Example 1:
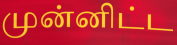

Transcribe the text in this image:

முன்னிட்ட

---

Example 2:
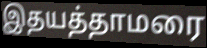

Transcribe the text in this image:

இதயத்தாமரை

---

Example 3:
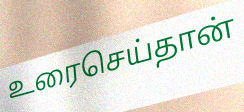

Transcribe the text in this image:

உரைசெய்தான்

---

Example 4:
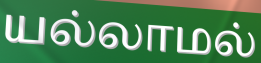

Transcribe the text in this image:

யல்லாமல்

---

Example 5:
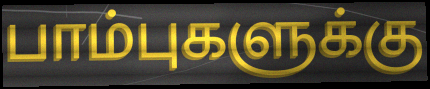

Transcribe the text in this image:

பாம்புகளுக்கு